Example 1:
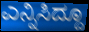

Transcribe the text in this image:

ಎನ್ನಿಸಿದ್ದೂ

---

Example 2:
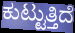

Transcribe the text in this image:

ಕುಟ್ಟುತ್ತಿದೆ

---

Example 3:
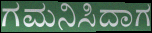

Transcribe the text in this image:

ಗಮನಿಸಿದಾಗ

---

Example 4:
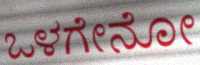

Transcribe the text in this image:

ಒಳಗೇನೋ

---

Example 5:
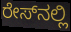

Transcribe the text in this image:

ರೇಸ್‍ನಲ್ಲಿ